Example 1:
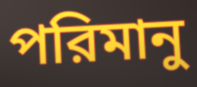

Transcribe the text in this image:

পরিমানু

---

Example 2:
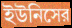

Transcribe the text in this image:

ইউনিসের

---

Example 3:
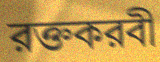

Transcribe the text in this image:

রক্তকরবী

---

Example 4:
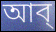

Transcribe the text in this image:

আব্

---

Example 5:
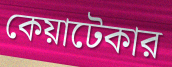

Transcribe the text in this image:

কেয়াটেকার